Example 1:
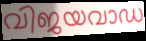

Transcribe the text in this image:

വിജയവാഡ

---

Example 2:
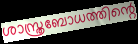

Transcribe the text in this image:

ശാസ്ത്രബോധത്തിന്റെ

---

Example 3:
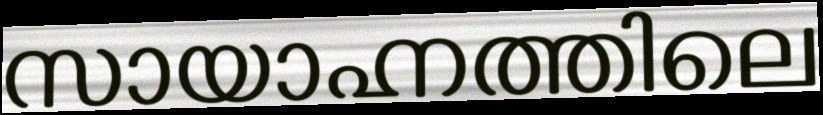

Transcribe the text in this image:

സായാഹ്നത്തിലെ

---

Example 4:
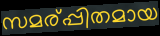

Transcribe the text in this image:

സമര്പ്പിതമായ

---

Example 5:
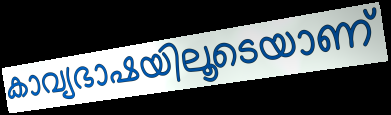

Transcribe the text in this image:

കാവ്യഭാഷയിലൂടെയാണ്